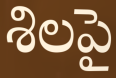
శిలపై